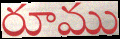
రూము